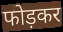
फोड़कर